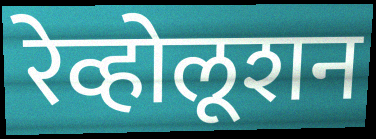
रेव्होलूशन